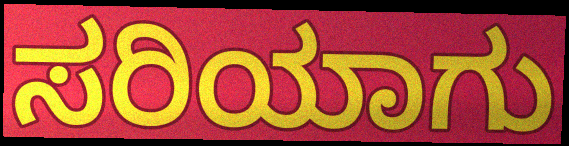
ಸರಿಯಾಗು